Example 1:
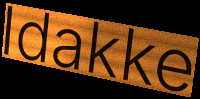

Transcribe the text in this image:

Idakke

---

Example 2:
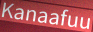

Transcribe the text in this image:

Kanaafuu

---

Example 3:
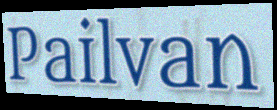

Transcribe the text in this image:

Pailvan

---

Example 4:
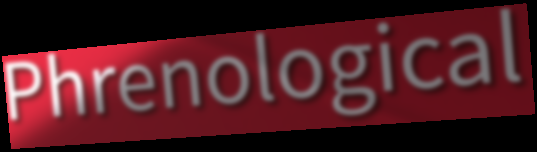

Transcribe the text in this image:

Phrenological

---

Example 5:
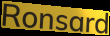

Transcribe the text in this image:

Ronsard